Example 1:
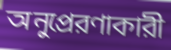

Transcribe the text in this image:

অনুপ্রেরণাকারী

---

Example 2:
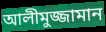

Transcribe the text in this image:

আলীমুজ্জামান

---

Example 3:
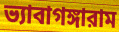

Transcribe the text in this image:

ভ্যাবাগঙ্গারাম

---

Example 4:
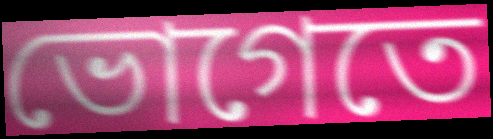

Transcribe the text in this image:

ভোগেতে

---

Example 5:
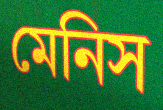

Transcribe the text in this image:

মেনিস